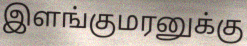
இளங்குமரனுக்கு